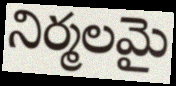
నిర్మలమై